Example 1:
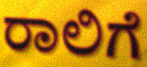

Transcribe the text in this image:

ರಾಲಿಗೆ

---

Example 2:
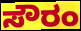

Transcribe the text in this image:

ಸೌರಂ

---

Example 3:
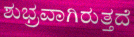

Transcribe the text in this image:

ಶುಭ್ರವಾಗಿರುತ್ತದೆ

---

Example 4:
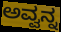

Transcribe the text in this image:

ಅವ್ವನ್ನ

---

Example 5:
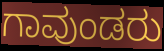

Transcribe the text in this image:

ಗಾವುಂಡರು